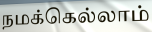
நமக்கெல்லாம்